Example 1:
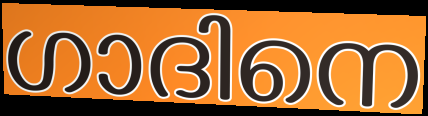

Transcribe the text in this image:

ഗാദിനെ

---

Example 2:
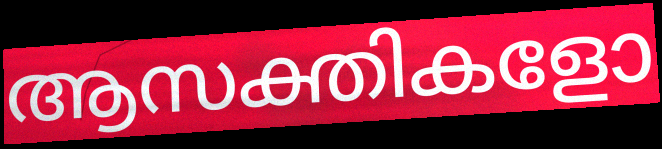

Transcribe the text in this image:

ആസക്തികളോ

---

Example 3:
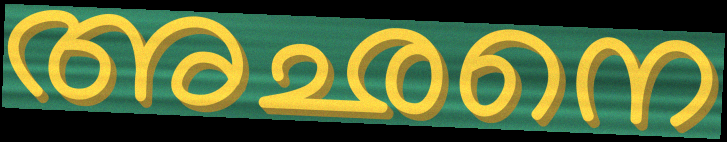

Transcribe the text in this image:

അഛനെ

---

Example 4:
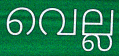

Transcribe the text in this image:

വെല്ല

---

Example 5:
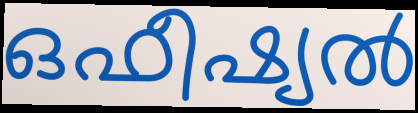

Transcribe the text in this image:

ഒഫീഷ്യൽ